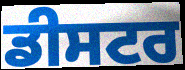
ਡੀਸਟਰ